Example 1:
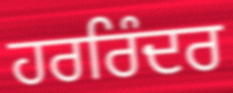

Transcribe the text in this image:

ਹਰਰਿੰਦਰ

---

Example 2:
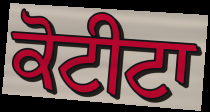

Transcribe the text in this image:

ਕੋਟੀਟਾ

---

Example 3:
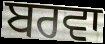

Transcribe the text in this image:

ਬਰਵਾ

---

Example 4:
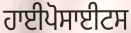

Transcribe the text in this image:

ਹਾਈਪੋਸਾਈਟਸ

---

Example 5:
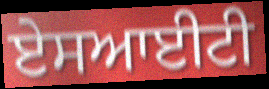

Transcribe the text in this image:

ਏਸਆਈਟੀ